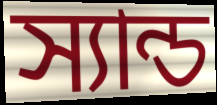
স্যান্ড